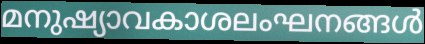
മനുഷ്യാവകാശലംഘനങ്ങൾ